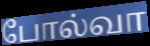
போல்வா